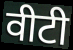
वीटी